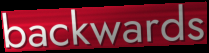
backwards